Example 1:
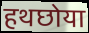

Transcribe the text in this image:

हथछोया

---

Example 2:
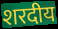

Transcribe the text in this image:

शरदीय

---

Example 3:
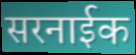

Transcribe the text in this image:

सरनाईक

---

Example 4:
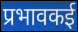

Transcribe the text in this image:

प्रभावकई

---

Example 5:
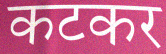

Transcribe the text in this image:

कटकर